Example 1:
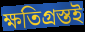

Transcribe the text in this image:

ক্ষতিগ্রস্তই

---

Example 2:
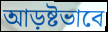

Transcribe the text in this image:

আড়ষ্টভাবে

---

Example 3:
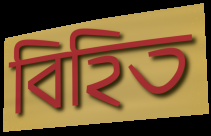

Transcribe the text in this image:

বিহিত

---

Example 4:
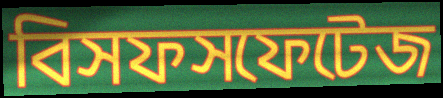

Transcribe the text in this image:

বিসফসফেটেজ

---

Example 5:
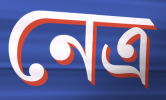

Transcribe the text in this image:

নেত্র